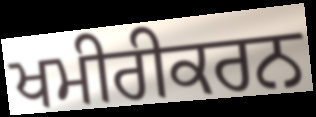
ਖਮੀਰੀਕਰਨ